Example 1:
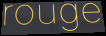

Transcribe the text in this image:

rouge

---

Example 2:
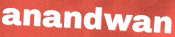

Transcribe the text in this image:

anandwan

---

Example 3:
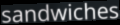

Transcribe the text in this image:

sandwiches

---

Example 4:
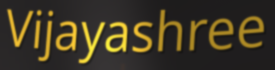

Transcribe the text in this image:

Vijayashree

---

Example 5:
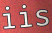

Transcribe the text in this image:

iis